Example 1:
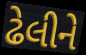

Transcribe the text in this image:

ઢેલીને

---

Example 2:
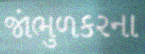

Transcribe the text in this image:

જાંભુળકરના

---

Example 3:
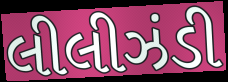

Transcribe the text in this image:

લીલીઝંડી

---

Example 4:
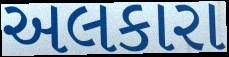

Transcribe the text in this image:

અલકારા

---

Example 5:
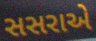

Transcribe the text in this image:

સસરાએ